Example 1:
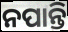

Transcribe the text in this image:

ନପାନ୍ତି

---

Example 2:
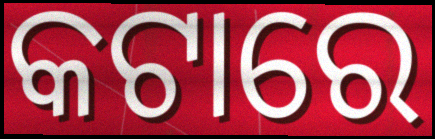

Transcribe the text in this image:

କଟାରେ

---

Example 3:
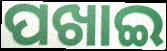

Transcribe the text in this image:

ପଖାଇ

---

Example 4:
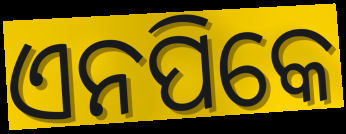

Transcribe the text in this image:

ଏନପିକେ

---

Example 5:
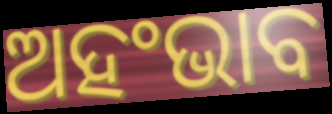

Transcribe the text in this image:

ଅହଂଭାବ